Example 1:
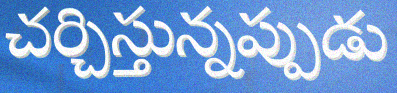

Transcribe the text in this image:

చర్చిస్తున్నప్పుడు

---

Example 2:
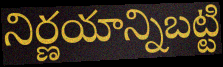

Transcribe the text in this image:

నిర్ణయాన్నిబట్టి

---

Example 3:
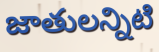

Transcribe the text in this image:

జాతులన్నిటి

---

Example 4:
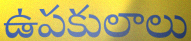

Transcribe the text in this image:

ఉపకులాలు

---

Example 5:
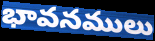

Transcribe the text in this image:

భావనములు